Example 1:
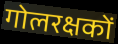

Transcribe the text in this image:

गोलरक्षकों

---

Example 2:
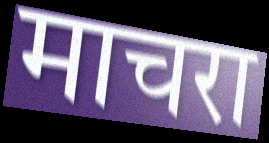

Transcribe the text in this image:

माचरा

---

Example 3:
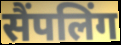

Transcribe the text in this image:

सैंपलिंग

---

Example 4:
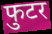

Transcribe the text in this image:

फुटर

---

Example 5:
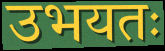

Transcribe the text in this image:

उभयतः